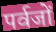
पर्वजों